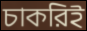
চাকরিই